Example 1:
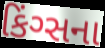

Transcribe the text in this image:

કિંગ્સના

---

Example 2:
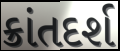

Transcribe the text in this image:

ક્રાંતદર્શ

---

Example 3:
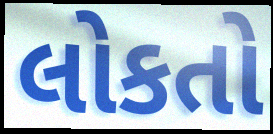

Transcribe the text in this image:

લોકતો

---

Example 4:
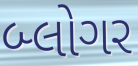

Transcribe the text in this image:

બ્લોગર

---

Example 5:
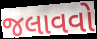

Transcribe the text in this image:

જલાવવો